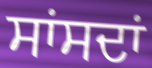
ਸਾਂਸਦਾਂ